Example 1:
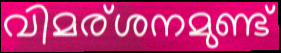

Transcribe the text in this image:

വിമര്ശനമുണ്ട്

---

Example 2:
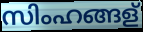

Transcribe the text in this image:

സിംഹങ്ങള്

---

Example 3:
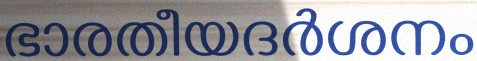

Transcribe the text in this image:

ഭാരതീയദർശനം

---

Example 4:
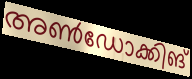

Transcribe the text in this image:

അൺഡോക്കിങ്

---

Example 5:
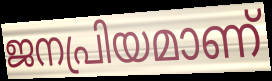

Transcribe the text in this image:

ജനപ്രിയമാണ്